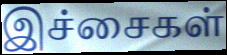
இச்சைகள்